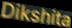
Dikshita